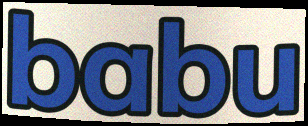
babu